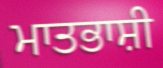
ਮਾਤਭਾਸ਼ੀ